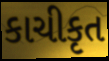
કાચીકૃત